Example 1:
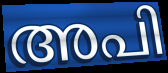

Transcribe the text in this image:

അപി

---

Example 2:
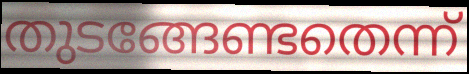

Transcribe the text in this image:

തുടങ്ങേണ്ടതെന്ന്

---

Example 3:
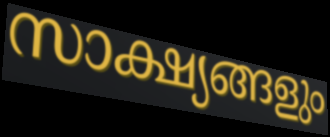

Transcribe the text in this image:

സാക്ഷ്യങ്ങളും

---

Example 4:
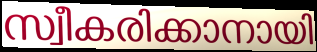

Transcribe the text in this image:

സ്വീകരിക്കാനായി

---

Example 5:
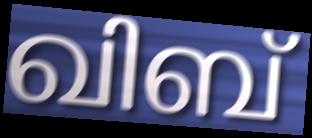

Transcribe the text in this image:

ഖിബ്